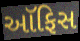
આૅફિસ